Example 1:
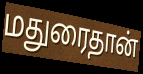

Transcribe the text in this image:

மதுரைதான்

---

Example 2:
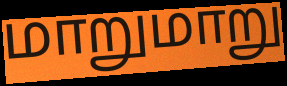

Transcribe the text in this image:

மாறுமாறு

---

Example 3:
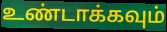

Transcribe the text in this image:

உண்டாக்கவும்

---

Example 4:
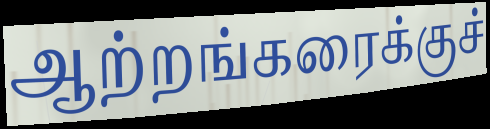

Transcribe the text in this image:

ஆற்றங்கரைக்குச்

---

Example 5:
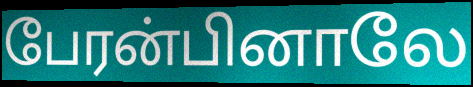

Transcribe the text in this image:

பேரன்பினாலே